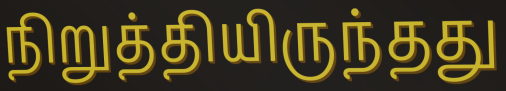
நிறுத்தியிருந்தது